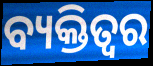
ବ୍ୟକ୍ତିତ୍ବର